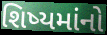
શિષ્યમાંનો